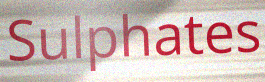
Sulphates